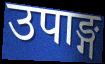
उपाङ्ग